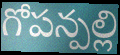
గోపన్పల్లి